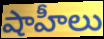
షాహీలు